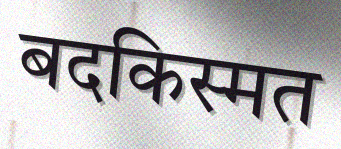
बदकिस्‍मत